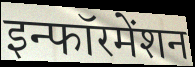
इन्फॉरमेंशन